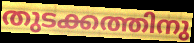
തുടക്കത്തിനു